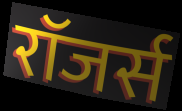
रॉजर्स